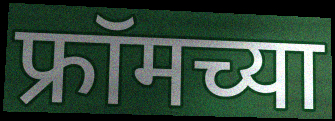
फ्रॉमच्या